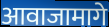
आवाजामागे